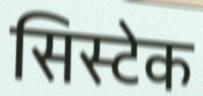
सिस्टेक